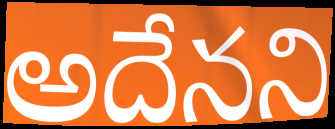
అదేనని